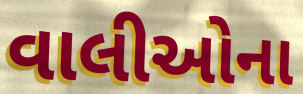
વાલીઓના